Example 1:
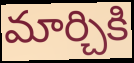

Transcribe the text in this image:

మార్చికి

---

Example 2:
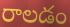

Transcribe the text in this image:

రాలడం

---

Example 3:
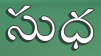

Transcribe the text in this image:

సుధ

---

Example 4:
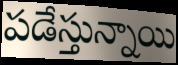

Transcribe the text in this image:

పడేస్తున్నాయి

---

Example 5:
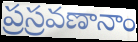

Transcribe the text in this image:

ప్రస్రవణానాం